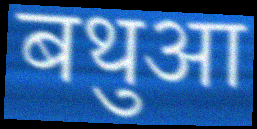
बथुआ